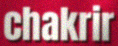
chakrir